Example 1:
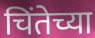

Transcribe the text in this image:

चिंतेच्या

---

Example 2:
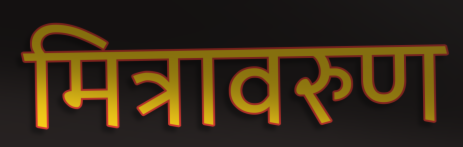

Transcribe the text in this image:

मित्रावरुण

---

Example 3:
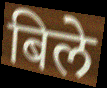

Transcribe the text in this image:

बिले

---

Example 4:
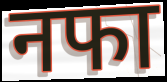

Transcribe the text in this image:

नफा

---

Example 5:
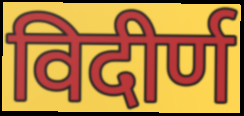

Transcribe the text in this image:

विदीर्ण